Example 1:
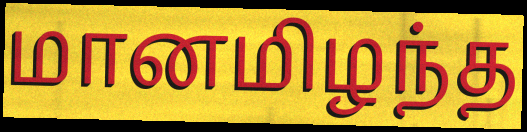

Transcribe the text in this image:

மானமிழந்த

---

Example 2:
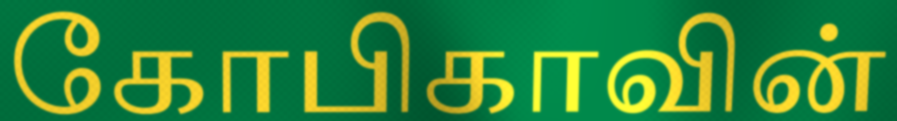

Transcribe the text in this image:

கோபிகாவின்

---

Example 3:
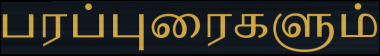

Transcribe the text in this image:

பரப்புரைகளும்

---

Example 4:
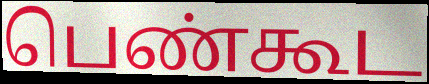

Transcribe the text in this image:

பெண்கூட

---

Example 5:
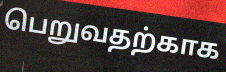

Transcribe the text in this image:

பெறுவதற்காக